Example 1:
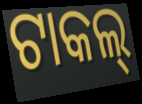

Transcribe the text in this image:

ଟାକଲ୍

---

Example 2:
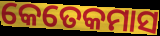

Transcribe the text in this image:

କେତେକମାସ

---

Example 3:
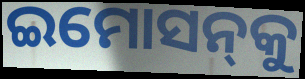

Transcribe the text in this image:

ଇମୋସନ୍‌କୁ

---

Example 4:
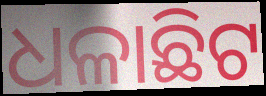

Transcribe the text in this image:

ଧଳାଛିଟ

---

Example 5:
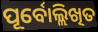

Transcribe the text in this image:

ପୂର୍ବୋଲ୍ଲିଖିତ